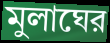
মুলাঘের